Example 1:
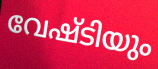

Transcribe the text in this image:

വേഷ്ടിയും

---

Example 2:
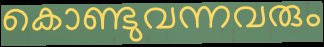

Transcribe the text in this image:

കൊണ്ടുവന്നവരും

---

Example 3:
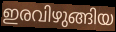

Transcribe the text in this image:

ഇരവിഴുങ്ങിയ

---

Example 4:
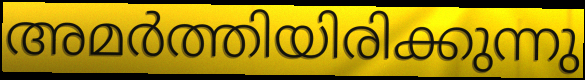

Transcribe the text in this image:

അമർത്തിയിരിക്കുന്നു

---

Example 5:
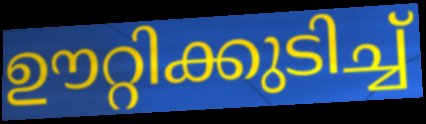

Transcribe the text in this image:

ഊറ്റിക്കുടിച്ച്